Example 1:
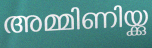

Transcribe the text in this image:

അമ്മിണിയ്ക്കു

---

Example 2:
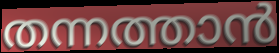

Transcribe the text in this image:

തന്നത്താൻ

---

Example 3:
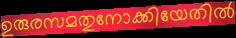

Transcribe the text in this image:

ഉരുരസമതുനോക്കിയേതിൽ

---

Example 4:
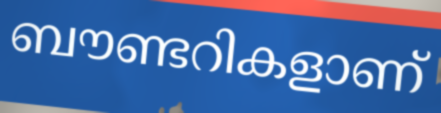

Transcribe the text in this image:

ബൗണ്ടറികളാണ്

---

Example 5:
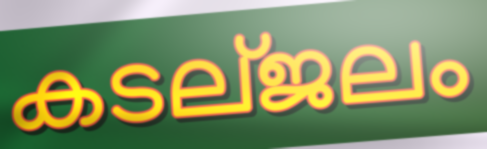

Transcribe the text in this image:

കടല്ജലം